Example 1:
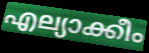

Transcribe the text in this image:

എല്യാക്കീം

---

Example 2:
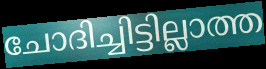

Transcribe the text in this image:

ചോദിച്ചിട്ടില്ലാത്ത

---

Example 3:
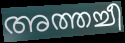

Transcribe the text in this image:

അത്തച്ചീ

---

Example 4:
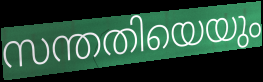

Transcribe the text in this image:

സന്തതിയെയും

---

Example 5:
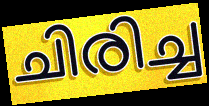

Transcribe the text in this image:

ചിരിച്ച